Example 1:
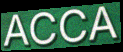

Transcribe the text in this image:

ACCA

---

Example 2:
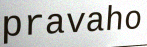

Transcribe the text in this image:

pravaho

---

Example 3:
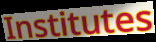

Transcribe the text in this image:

Institutes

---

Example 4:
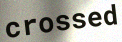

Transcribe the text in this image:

crossed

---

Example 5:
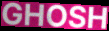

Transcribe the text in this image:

GHOSH